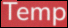
Temp